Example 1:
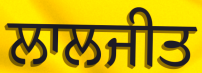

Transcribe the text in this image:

ਲਾਲਜੀਤ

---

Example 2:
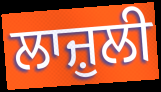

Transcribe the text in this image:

ਲਾਜ਼ੁਲੀ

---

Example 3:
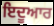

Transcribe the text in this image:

ਇਦੂਆਰ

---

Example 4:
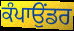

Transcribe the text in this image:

ਕੰਪਾਉਂਡਰ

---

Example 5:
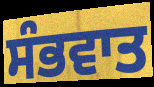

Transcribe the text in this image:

ਸੰਭਵਾਤ